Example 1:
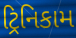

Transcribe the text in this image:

ટ્રિનિકામ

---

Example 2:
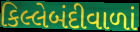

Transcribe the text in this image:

કિલ્લેબંદીવાળાં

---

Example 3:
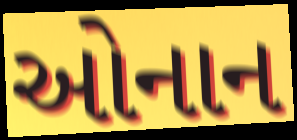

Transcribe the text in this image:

ઓનાન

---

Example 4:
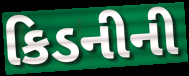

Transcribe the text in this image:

કિડનીની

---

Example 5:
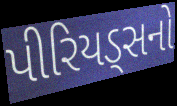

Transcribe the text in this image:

પીરિયડ્સનો